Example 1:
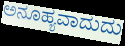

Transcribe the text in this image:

ಅನೂಹ್ಯವಾದುದು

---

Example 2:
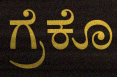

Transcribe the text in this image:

ಗ್ರೆಕೊ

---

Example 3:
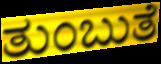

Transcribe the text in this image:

ತುಂಬುತೆ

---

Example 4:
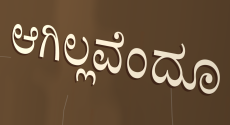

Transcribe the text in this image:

ಆಗಿಲ್ಲವೆಂದೂ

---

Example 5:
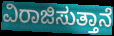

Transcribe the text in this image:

ವಿರಾಜಿಸುತ್ತಾನೆ